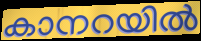
കാനറയിൽ